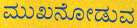
ಮುಖನೋಡುವ